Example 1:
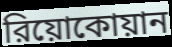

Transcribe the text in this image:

রিয়োকোয়ান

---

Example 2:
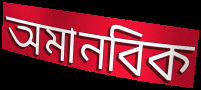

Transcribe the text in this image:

অমানবিক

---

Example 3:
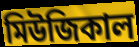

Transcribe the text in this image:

মিউজিকাল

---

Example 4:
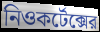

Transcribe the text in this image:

নিওকর্টেক্সের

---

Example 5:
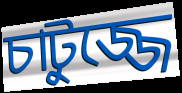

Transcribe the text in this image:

চাটুজ্জে